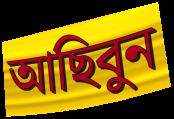
আছিবুন